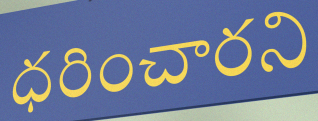
ధరించారని